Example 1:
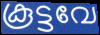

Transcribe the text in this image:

കൂട്ടവേ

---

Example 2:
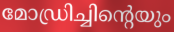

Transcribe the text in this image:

മോഡ്രിച്ചിന്റെയും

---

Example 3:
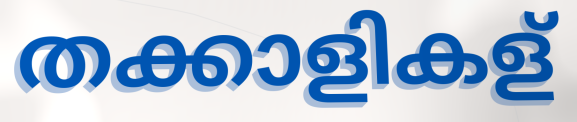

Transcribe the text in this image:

തക്കാളികള്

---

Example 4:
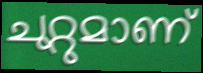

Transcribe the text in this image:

ചുറ്റുമാണ്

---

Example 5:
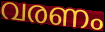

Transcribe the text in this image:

വരണം